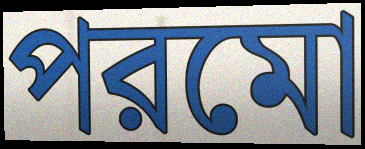
পরমো